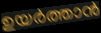
ഉയർത്താൻ